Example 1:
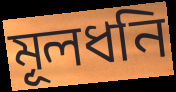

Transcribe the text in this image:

মূলধনি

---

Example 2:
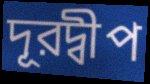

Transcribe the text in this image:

দূরদ্বীপ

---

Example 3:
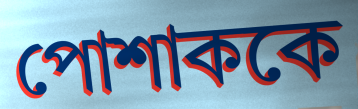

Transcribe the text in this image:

পোশাককে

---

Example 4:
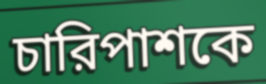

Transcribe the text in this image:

চারিপাশকে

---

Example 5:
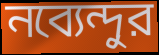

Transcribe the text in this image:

নব্যেন্দুর